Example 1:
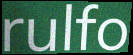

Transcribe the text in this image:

rulfo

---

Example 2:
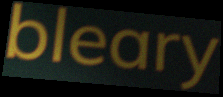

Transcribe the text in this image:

bleary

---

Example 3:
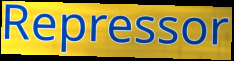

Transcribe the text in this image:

Repressor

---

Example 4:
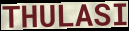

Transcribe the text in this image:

THULASI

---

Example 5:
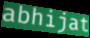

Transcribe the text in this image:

abhijat